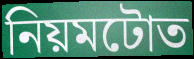
নিয়মটোত